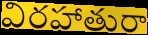
విరహాతురా